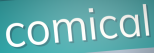
comical